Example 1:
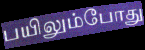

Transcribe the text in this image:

பயிலும்போது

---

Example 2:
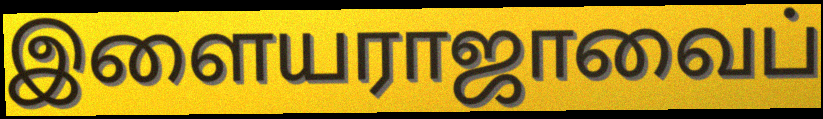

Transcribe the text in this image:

இளையராஜாவைப்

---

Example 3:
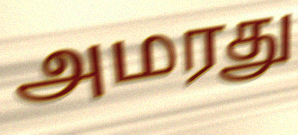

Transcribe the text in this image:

அமரது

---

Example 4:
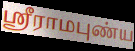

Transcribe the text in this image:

ஸ்ரீராமபுண்ய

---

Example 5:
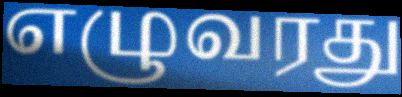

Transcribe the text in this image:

எழுவரது